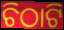
ଚିଠାଟି